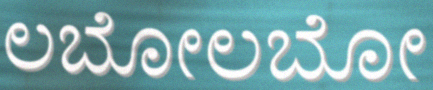
ಲಬೋಲಬೋ